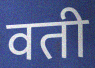
वती